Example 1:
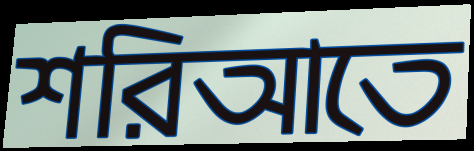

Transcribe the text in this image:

শরিআতে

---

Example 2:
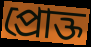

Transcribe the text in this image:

প্রোক্ত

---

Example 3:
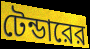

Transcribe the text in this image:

টেন্ডারের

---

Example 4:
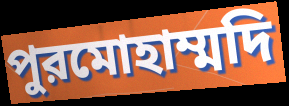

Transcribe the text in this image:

পুরমোহাম্মদি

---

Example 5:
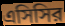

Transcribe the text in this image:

এসিসির